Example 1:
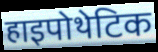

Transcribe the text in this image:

हाइपोथेटिक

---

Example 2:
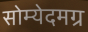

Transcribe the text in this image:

सोम्येदमग्र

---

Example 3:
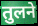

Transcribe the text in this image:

तुलने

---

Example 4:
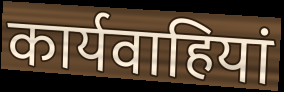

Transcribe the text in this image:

कार्यवाहियां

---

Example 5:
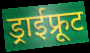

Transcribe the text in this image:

ड्राईफ्रूट